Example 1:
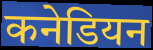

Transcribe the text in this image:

कनेडियन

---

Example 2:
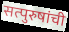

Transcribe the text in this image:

सत्पुरुषांची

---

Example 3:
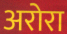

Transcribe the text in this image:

अरोरा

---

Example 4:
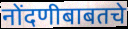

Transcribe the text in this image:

नोंदणीबाबतचे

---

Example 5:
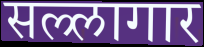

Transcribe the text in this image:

सल्लागार